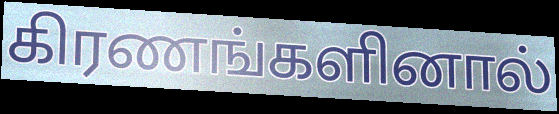
கிரணங்களினால்